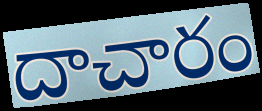
దాచారం